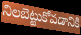
నిలబెట్టుకోవడానికి